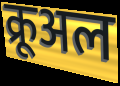
क्रूअल